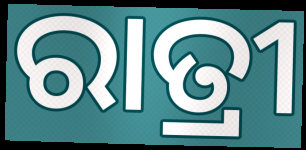
ରାତ୍ରୀ